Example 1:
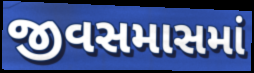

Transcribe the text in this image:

જીવસમાસમાં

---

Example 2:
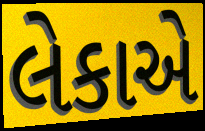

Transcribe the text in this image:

લેકાએ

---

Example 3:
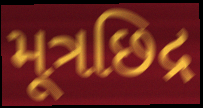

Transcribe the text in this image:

મૂત્રછિદ્ર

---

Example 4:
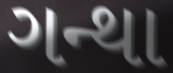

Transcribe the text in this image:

ગન્થા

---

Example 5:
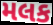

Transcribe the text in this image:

મલક